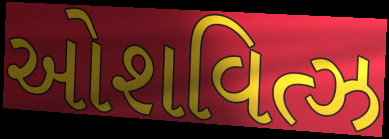
ઓશવિત્ઝ